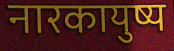
नारकायुष्य